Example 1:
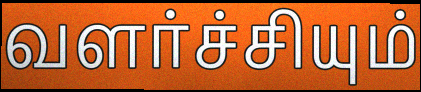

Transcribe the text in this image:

வளர்ச்சியும்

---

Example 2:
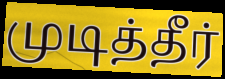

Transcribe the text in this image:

முடித்தீர்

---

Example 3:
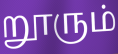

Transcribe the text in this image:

றூரும்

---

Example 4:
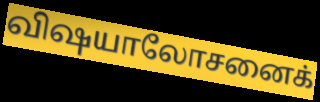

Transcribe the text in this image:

விஷயாலோசனைக்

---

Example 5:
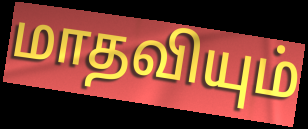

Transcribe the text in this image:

மாதவியும்